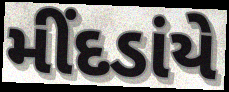
મીંદડાંયે